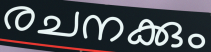
രചനക്കും